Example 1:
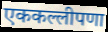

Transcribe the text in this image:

एककल्लीपणा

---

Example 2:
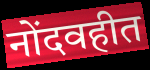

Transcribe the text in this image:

नोंदवहीत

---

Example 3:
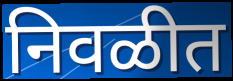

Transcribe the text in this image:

निवळीत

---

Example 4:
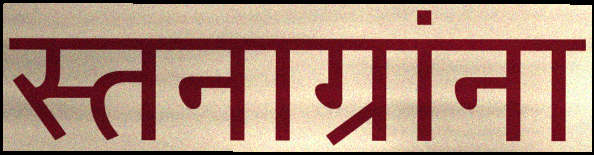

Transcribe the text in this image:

स्तनाग्रांना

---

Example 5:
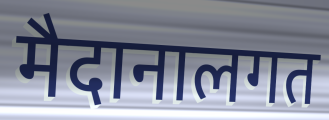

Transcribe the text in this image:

मैदानालगत